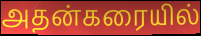
அதன்கரையில்